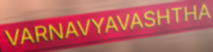
VARNAVYAVASHTHA